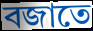
বজাতে